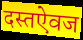
दस्तऐवज